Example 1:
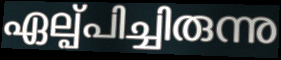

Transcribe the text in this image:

ഏല്പ്പിച്ചിരുന്നു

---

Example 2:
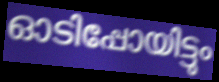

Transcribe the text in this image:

ഓടിപ്പോയിട്ടും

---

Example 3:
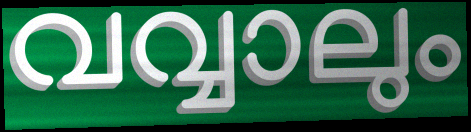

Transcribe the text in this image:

വവ്വാലും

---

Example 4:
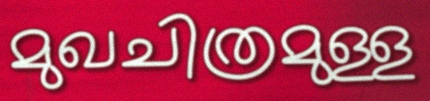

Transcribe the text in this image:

മുഖചിത്രമുള്ള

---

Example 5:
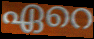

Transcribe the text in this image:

ഏറെ